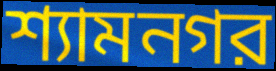
শ্যামনগর